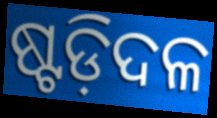
ଷ୍ଟଡ଼ିଦଳ